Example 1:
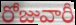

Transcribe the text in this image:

రోజువారీ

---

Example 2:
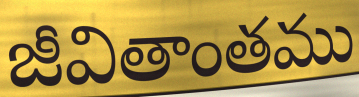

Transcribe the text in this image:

జీవితాంతము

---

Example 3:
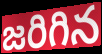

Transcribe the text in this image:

జరిగిన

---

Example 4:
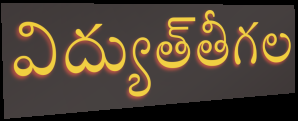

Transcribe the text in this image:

విద్యుత్‌తీగల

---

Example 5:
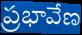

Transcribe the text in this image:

ప్రభావేణ